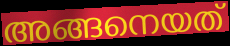
അങ്ങനെയത്